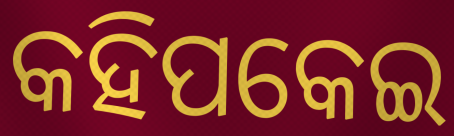
କହିପକେଇ